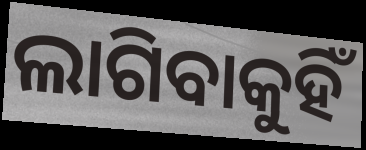
ଲାଗିବାକୁହିଁ